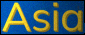
Asia